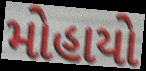
મોહાયો